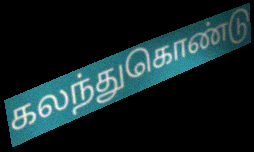
கலந்துகொண்டு